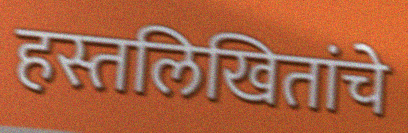
हस्तलिखितांचे